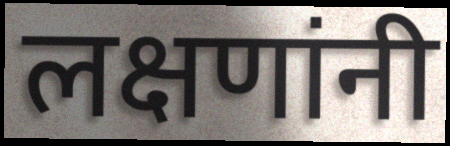
लक्षणांनी